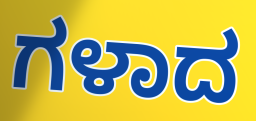
ಗಳಾದ